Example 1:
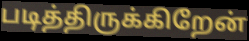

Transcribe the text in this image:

படித்திருக்கிறேன்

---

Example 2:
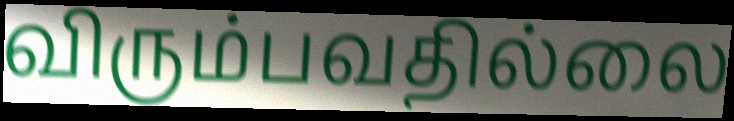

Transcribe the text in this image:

விரும்பவதில்லை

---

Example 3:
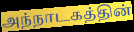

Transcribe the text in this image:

அந்நாடகத்தின்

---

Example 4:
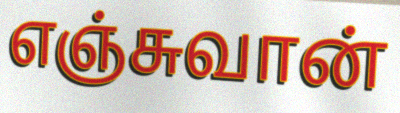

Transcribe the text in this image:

எஞ்சுவான்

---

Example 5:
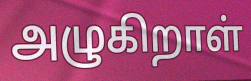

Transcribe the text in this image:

அழுகிறாள்